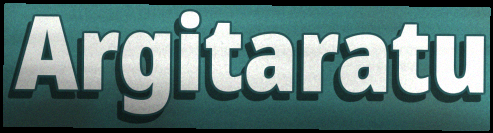
Argitaratu